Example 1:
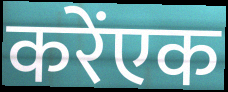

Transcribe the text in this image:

करेंएक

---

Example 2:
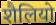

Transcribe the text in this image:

शैलियो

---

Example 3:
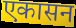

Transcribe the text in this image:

एकासन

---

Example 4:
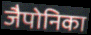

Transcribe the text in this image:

जैपोनिका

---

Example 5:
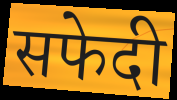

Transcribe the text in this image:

सफेदी